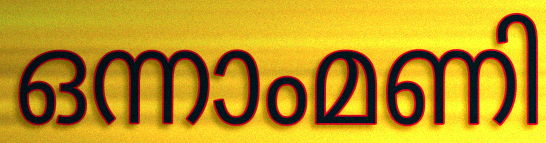
ഒന്നാംമണി